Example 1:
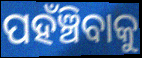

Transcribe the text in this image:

ପହଁଞ୍ଚିବାକୁ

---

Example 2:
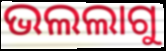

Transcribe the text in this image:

ଭଲଲାଗୁ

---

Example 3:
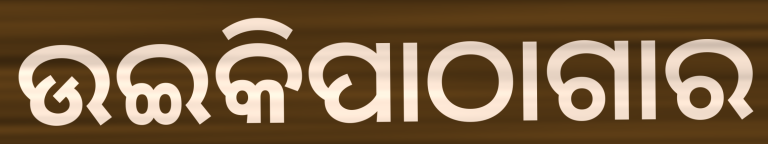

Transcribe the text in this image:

ଉଇକିପାଠାଗାର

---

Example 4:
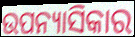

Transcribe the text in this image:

ଉପନ୍ୟାସିକାର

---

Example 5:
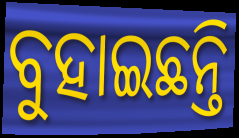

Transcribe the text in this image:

ବୁହାଇଛନ୍ତି